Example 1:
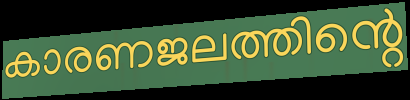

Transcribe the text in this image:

കാരണജലത്തിന്റെ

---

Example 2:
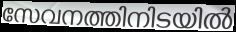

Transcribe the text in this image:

സേവനത്തിനിടയിൽ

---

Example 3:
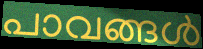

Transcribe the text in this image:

പാവങ്ങൾ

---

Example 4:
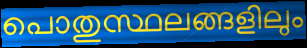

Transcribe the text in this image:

പൊതുസ്ഥലങ്ങളിലും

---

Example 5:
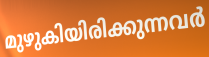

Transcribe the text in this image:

മുഴുകിയിരിക്കുന്നവർ